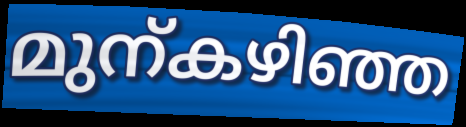
മുന്കഴിഞ്ഞ